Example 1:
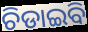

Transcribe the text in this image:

ଚିଡାଇବି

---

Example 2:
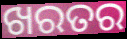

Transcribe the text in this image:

ଖରତର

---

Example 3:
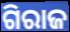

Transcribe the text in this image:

ଗିରାଜ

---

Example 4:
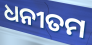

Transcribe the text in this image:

ଧନୀତମ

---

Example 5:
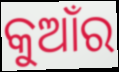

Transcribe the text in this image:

କୁଆଁର